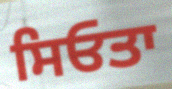
ਸਿਓਤਾ